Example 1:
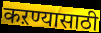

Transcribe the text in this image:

कऱण्यासाठी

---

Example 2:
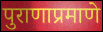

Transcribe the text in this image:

पुराणाप्रमाणे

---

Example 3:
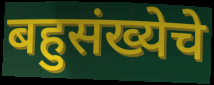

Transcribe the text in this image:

बहुसंख्येचे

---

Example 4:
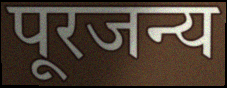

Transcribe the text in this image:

पूरजन्य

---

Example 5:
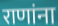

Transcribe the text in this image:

राणांना